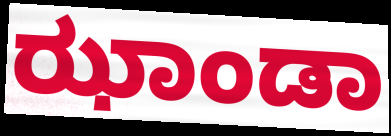
ಝಾಂಡಾ